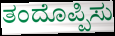
ತಂದೊಪ್ಪಿಸು